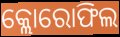
କ୍ଲୋରୋଫିଲ